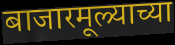
बाजारमूल्याच्या